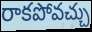
రాకపోవచ్చు